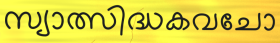
സ്യാത്സിദ്ധകവചോ